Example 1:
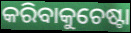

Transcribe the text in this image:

କରିବାକୁଚେଷ୍ଟା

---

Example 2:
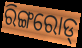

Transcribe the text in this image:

ରିଙ୍ଗରୋଡ୍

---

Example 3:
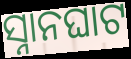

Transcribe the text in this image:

ସ୍ନାନଘାଟ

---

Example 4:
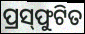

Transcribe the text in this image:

ପ୍ରସ୍‌ଫୁଟିତ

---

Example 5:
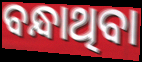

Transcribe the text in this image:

ବନ୍ଧାଥିବା